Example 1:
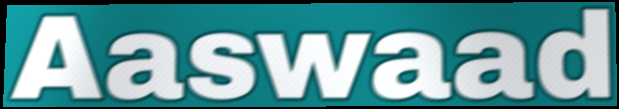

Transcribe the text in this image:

Aaswaad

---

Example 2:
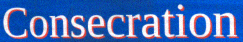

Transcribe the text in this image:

Consecration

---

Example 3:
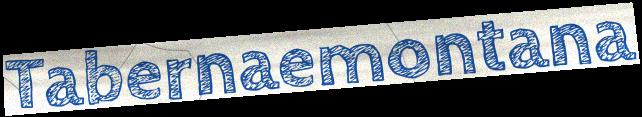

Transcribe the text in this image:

Tabernaemontana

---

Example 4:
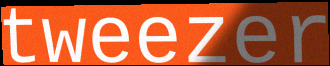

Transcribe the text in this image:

tweezer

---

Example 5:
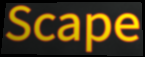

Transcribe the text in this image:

Scape